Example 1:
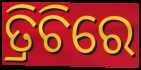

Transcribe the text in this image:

ତ୍ରିଚିରେ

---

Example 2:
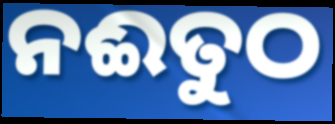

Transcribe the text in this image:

ନଈତୁଠ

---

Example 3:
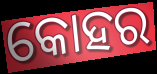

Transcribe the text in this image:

କୋହର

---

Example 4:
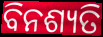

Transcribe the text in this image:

ବିନଶ୍ୟତି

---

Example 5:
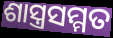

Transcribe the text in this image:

ଶାସ୍ତ୍ରସମ୍ମତ